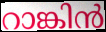
റാങ്കിൻ